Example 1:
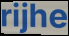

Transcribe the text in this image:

rijhe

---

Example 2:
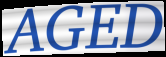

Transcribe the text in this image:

AGED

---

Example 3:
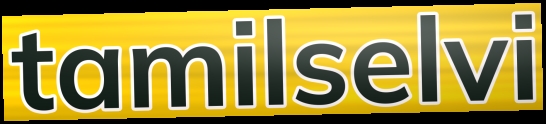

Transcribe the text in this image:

tamilselvi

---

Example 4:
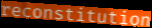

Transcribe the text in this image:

reconstitution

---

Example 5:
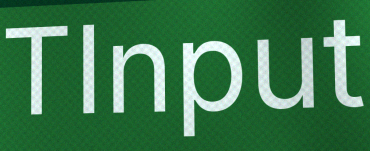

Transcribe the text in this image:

TInput